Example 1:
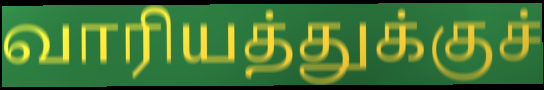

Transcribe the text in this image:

வாரியத்துக்குச்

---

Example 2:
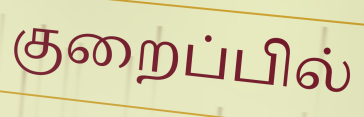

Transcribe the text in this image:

குறைப்பில்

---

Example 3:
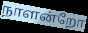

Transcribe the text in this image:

நாளன்றோ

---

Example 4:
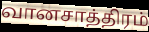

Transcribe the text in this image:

வானசாத்திரம்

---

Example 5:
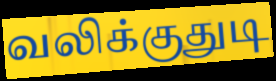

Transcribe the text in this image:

வலிக்குதுடி